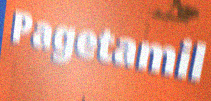
Pagetamil